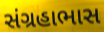
સંગ્રહાભાસ